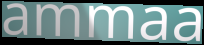
ammaa